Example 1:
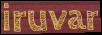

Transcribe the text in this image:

iruvar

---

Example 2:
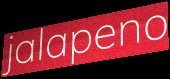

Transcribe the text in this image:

jalapeno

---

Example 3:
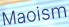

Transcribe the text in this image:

Maoism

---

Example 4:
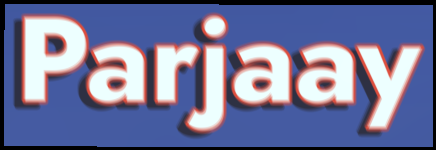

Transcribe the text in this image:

Parjaay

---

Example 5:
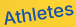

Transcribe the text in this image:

Athletes